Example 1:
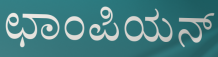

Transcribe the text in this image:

ಛಾಂಪಿಯನ್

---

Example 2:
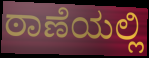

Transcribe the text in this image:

ಠಾಣೆಯಲ್ಲಿ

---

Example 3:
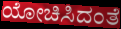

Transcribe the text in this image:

ಯೋಚಿಸಿದಂತೆ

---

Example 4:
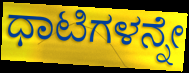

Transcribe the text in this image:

ಧಾಟಿಗಳನ್ನೇ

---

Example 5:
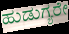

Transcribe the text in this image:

ಹುಡುಗ್ಯರೇ